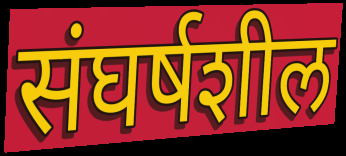
संघर्षशील